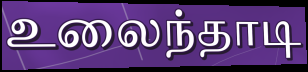
உலைந்தாடி